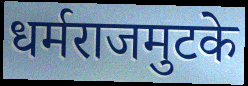
धर्मराजमुटके